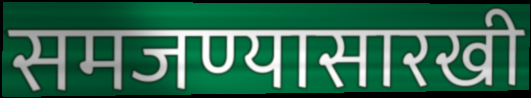
समजण्यासारखी